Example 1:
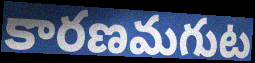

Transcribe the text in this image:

కారణమగుట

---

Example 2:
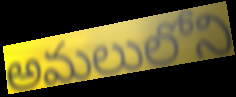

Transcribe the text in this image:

అమలులోని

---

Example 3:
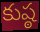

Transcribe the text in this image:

కుష్ఠ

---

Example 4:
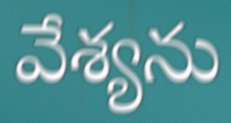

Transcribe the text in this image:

వేశ్యను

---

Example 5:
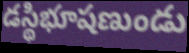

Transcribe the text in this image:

డస్థిభూషణుండు